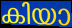
കിയാ